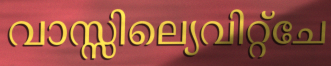
വാസ്സില്യെവിറ്റ്ചേ